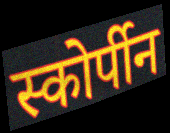
स्कोर्पीन